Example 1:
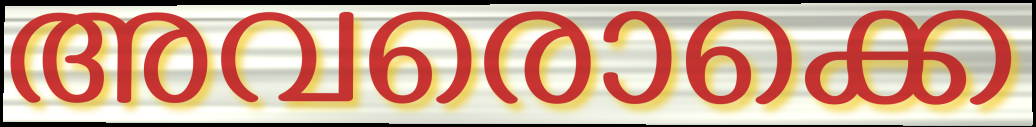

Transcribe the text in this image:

അവരൊക്കെ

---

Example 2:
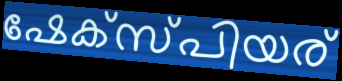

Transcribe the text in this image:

ഷേക്സ്പിയര്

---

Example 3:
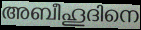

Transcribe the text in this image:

അബീഹൂദിനെ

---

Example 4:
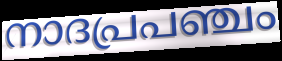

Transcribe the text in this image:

നാദപ്രപഞ്ചം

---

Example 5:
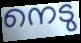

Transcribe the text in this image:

നെടു